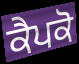
ਕੈਪਕੋ